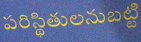
పరిస్థితులనుబట్టి